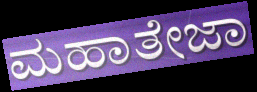
ಮಹಾತೇಜಾ